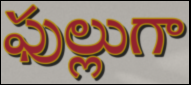
ఫుల్లుగా